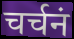
चर्चनं